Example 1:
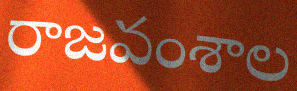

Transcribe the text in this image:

రాజవంశాల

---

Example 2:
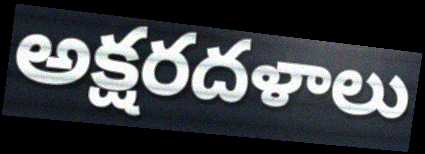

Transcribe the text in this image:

అక్షరదళాలు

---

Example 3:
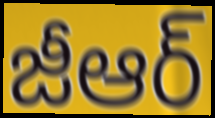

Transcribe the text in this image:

జీఆర్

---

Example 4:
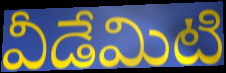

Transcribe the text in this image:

వీడేమిటి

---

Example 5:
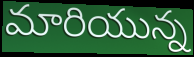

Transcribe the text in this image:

మారియున్న